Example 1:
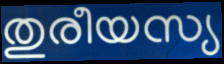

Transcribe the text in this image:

തുരീയസ്യ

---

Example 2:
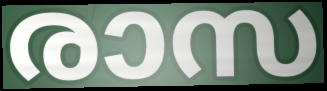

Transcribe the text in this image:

രാസ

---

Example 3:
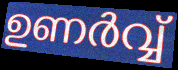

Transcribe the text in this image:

ഉണർവ്വ്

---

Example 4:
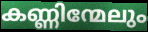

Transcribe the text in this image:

കണ്ണിന്മേലും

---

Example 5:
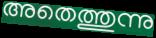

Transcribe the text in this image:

അതെത്തുന്നു